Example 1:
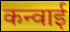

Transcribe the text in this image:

कन्वाई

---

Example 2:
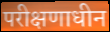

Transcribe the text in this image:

परीक्षणाधीन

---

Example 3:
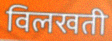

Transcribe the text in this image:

विलखती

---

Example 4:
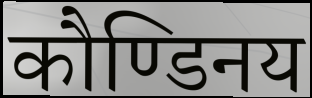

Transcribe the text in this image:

कौण्डिनय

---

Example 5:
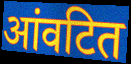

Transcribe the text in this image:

आंवटित